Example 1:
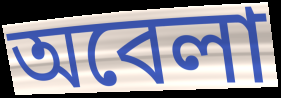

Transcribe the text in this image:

অবেলা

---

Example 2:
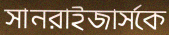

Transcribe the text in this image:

সানরাইজার্সকে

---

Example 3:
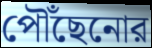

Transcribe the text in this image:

পৌঁছেনোর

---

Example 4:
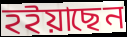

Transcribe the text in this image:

হইয়াছেন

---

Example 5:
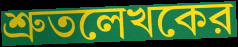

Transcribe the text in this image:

শ্রুতলেখকের